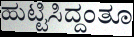
ಹುಟ್ಟಿಸಿದ್ದಂತೂ